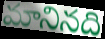
మానినది